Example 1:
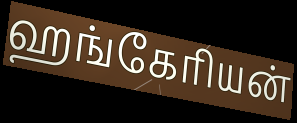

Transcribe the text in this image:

ஹங்கேரியன்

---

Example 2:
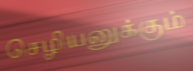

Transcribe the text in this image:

செழியனுக்கும்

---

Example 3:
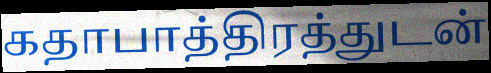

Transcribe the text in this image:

கதாபாத்திரத்துடன்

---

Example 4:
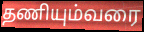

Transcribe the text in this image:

தணியும்வரை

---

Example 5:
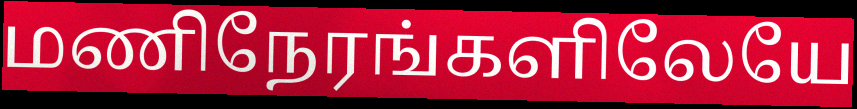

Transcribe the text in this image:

மணிநேரங்களிலேயே